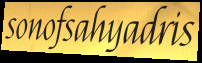
sonofsahyadris